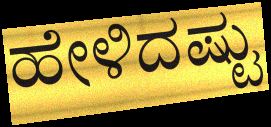
ಹೇಳಿದಷ್ಟು